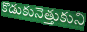
కొడుకునెత్తుకుని